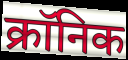
क्रॉनिक